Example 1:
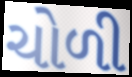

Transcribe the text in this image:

ચોળી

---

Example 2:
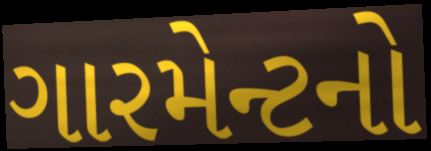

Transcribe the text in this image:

ગારમેન્ટનો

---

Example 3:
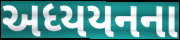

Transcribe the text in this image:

અધ્યયનના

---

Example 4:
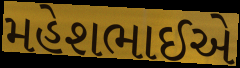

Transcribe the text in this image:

મહેશભાઈએ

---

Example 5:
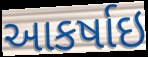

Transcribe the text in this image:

આકર્ષાઇ